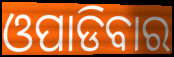
ଓପାଡିବାର